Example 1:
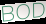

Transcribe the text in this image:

BOD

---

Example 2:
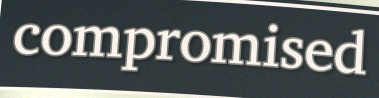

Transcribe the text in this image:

compromised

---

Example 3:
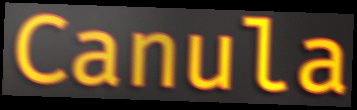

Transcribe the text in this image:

Canula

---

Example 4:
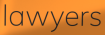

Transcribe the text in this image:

lawyers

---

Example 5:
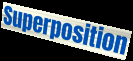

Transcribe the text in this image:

Superposition